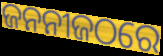
ଜନନୀଜଠରେ